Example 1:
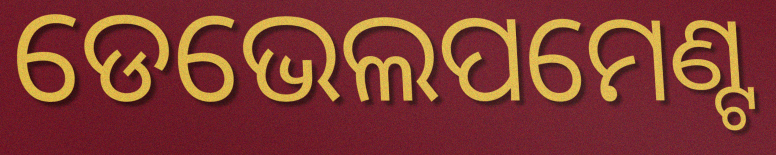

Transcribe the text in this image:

ଡେଭେଲପମେଣ୍ଟ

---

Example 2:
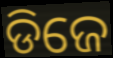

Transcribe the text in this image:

ଡିଜେ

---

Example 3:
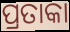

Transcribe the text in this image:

ପ୍ରତାକା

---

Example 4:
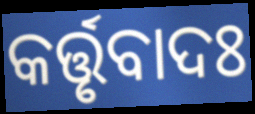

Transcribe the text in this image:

କର୍ତ୍ତୃବାଦଃ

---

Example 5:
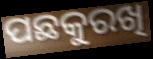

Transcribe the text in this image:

ପଛକୁରଖି